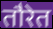
तौरेत